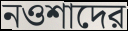
নওশাদের